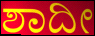
ಶಾದೀ